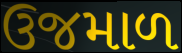
ઉજમાળ